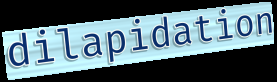
dilapidation